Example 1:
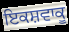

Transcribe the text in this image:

ਇਕਸ਼ਵਾਕੂ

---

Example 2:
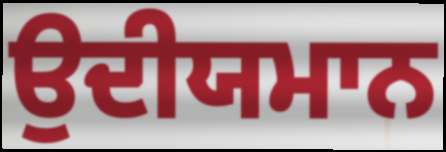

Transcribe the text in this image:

ਉਦੀਯਮਾਨ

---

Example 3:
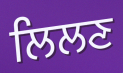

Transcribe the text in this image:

ਲਿਲਣ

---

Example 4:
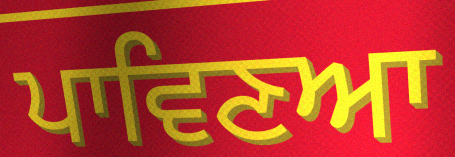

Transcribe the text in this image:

ਪਾਵਿਣਆ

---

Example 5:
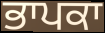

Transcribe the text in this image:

ਭਾਪਕਾ